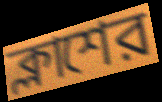
ক্লাশের